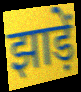
झाड़ें